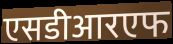
एसडीआरएफ